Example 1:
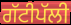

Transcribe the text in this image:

ਗੱਟੀਪੱਲੀ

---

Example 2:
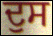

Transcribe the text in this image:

ਦੁਸ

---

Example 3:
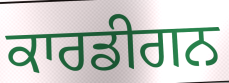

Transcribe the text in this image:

ਕਾਰਡੀਗਨ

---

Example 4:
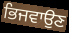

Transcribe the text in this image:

ਭਿਜਵਾਉਣ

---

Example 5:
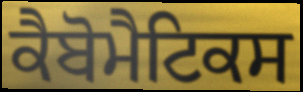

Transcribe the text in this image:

ਕੈਬੋਮੈਟਿਕਸ